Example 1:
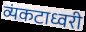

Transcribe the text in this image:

व्यंकटाध्वरी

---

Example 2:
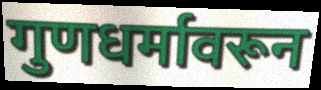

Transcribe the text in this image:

गुणधर्मावरून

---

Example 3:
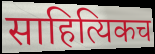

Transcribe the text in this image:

साहित्यिकच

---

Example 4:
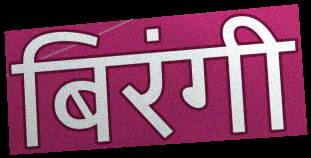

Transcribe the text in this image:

बिरंगी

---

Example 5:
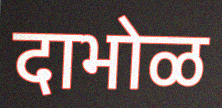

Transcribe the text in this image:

दाभोळ